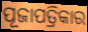
ପୂଜାପତ୍ରିକାର